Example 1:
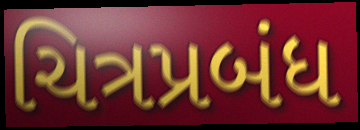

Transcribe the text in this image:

ચિત્રપ્રબંધ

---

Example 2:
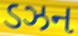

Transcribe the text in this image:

ડઝન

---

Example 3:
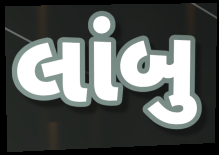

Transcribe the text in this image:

લાંબુ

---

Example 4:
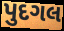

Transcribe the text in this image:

પુદગલ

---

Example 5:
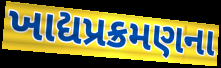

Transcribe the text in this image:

ખાદ્યપ્રક્રમણના